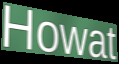
Howat